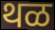
थळ